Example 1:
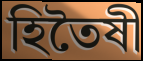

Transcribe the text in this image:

হিতৈষী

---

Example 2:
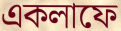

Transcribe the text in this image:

একলাফে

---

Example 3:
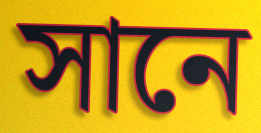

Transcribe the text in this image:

সানে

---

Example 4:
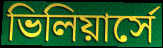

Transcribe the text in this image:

ভিলিয়ার্সে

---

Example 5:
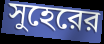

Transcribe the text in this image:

সুহেরের